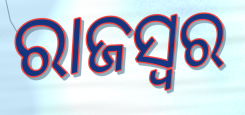
ରାଜସ୍ୱର